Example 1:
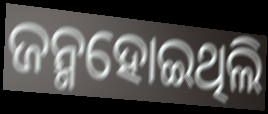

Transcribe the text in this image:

ଜନ୍ମହୋଇଥିଲି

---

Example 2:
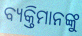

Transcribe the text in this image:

ବ୍ଯକ୍ତିମାନଙ୍କୁ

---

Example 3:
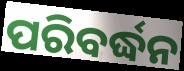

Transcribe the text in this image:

ପରିବର୍ଦ୍ଧନ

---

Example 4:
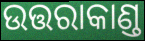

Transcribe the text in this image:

ଉତ୍ତରାକାଣ୍ଡ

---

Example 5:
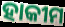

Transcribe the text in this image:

ହାକୀମ